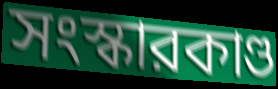
সংস্কারকাণ্ড